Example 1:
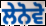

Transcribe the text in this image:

ਲੇਨੋਵੋ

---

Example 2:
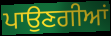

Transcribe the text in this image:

ਪਾਉਣਗੀਆਂ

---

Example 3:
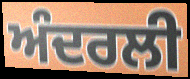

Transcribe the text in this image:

ਅੰਦਰਲੀ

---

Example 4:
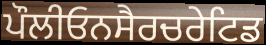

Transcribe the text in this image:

ਪੌਲੀਓਨਸੈਰਚਰੇਟਿਡ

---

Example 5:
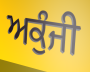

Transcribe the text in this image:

ਅਕੁੰਜੀ